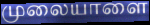
முலையாளை